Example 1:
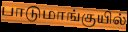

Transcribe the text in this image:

பாடுமாங்குயில்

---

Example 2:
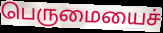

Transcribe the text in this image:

பெருமையைச்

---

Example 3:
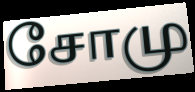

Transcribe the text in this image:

சோமு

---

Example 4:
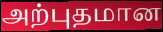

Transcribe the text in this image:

அற்புதமான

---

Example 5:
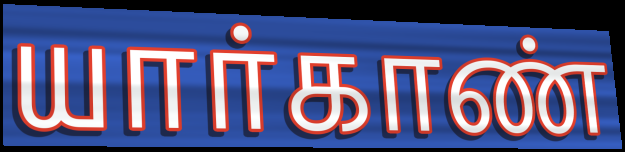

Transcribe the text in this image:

யார்காண்